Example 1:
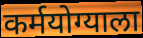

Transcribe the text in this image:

कर्मयोग्याला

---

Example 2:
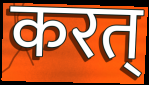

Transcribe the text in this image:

करत्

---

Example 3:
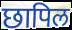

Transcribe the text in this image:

छापिल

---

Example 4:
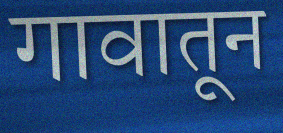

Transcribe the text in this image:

गावातून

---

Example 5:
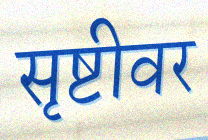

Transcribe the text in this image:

सृष्टीवर